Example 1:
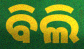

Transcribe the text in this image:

ବିଲି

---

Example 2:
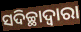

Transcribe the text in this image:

ସଦିଚ୍ଛାଦ୍ୱାରା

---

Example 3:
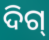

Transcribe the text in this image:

ଦିଗ୍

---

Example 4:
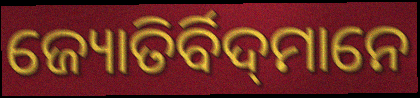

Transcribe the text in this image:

ଜ୍ୟୋତିର୍ବିଦ୍‌ମାନେ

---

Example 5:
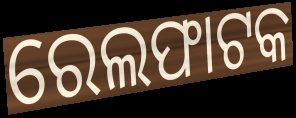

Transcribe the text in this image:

ରେଲଫାଟକ